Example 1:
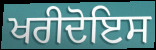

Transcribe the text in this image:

ਖਰੀਦੋਇਸ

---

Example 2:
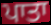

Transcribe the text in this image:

ਪਾਤਾ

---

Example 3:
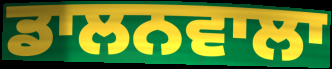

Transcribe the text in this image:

ਡਾਲਨਵਾਲਾ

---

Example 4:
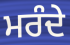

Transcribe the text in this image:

ਮਰੰਦੇ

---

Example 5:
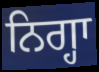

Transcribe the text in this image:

ਨਿਗ੍ਹਾ